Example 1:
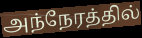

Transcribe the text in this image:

அந்நேரத்தில்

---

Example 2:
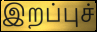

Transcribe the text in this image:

இறப்புச்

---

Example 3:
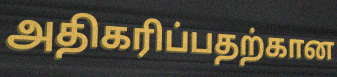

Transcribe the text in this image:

அதிகரிப்பதற்கான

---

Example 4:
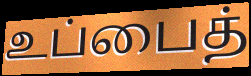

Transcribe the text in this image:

உப்பைத்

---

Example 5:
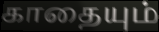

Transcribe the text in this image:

காதையும்